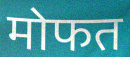
मोफत